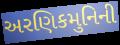
અરણિકમુનિની